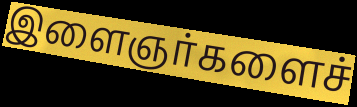
இளைஞர்களைச்